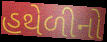
હથેળીનો